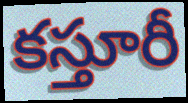
కస్తూరీ